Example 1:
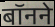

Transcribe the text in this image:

बॉनने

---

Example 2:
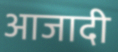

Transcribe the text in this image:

आजादी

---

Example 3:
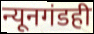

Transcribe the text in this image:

न्यूनगंडही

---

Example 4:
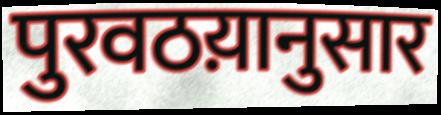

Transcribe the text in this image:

पुरवठय़ानुसार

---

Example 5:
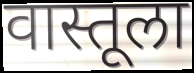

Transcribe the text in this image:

वास्तूला